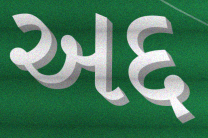
અદ્દ